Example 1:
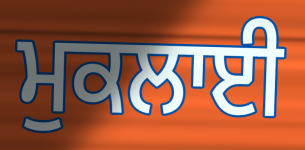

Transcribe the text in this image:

ਮੁਕਲਾਈ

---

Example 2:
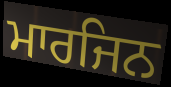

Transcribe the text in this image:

ਮਾਰਜਿਨ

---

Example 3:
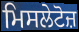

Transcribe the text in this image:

ਮਿਸਲੇਟੋਜ਼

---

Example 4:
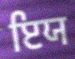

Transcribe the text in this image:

ਇਯ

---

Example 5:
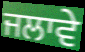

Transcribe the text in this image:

ਜਲਾਵੇ